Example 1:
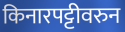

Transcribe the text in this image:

किनारपट्टीवरुन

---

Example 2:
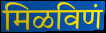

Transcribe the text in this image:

मिळविणं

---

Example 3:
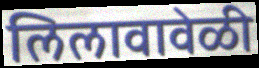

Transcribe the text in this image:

लिलावावेळी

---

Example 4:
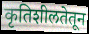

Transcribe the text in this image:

कृतिशीलतेतून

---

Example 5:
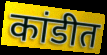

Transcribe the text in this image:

कांडीत